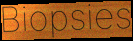
Biopsies